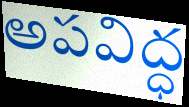
అపవిద్ధ